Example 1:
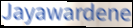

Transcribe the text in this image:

Jayawardene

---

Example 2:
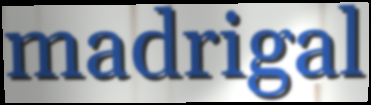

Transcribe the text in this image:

madrigal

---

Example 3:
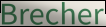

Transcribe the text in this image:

Brecher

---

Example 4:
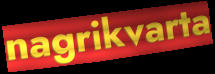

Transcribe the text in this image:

nagrikvarta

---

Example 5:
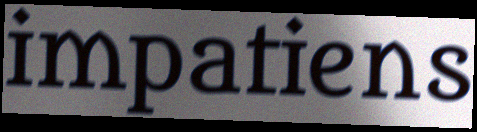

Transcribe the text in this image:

impatiens